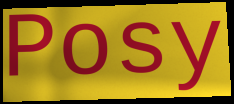
Posy